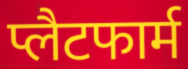
प्लैटफार्म